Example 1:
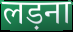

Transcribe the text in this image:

लड़ना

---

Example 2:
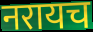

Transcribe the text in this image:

नरायच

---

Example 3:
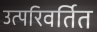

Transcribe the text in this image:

उत्परिवर्तित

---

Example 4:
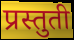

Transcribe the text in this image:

प्रस्तुती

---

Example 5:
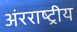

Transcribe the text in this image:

अंरराष्ट्रीय